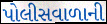
પોલીસવાળાની